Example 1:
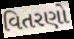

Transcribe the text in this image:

વિતરણો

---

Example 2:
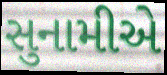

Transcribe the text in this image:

સુનામીએ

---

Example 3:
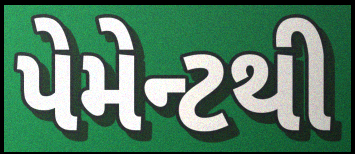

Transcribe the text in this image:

પેમેન્ટથી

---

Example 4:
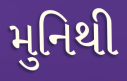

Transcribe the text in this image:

મુનિથી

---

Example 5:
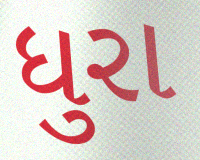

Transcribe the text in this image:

ધુરા